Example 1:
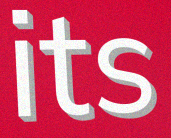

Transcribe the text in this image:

its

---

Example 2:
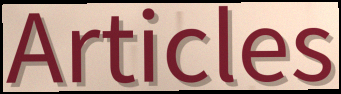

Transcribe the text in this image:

Articles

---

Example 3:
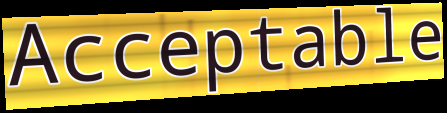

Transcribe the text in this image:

Acceptable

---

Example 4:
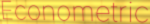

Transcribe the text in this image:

Econometric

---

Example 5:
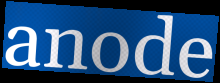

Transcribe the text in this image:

anode